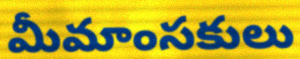
మీమాంసకులు